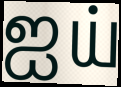
ஐய்